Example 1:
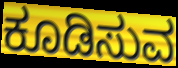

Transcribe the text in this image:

ಕೂಡಿಸುವ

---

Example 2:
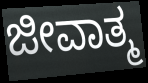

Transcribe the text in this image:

ಜೀವಾತ್ಮ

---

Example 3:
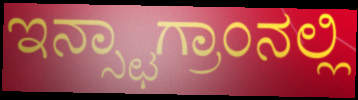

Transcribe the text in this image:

ಇನ್ಸ್ಟಾಗ್ರಾಂನಲ್ಲಿ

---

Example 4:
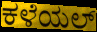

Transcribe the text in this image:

ಕಳೆಯಲ್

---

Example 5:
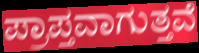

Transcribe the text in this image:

ಪ್ರಾಪ್ತವಾಗುತ್ತವೆ